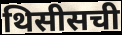
थिसीसची